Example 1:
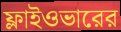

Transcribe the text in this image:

ফ্লাইওভারের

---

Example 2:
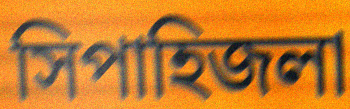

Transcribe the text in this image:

সিপাহিজলা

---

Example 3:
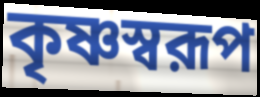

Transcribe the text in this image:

কৃষ্ণস্বরূপ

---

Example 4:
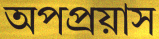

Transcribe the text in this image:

অপপ্রয়াস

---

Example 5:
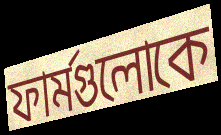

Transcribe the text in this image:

ফার্মগুলোকে